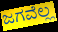
ಜಗವೆಲ್ಲ